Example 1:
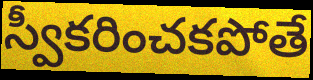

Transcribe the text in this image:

స్వీకరించకపోతే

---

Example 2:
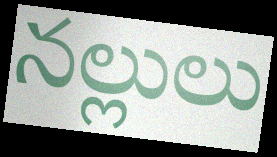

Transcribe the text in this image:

నల్లులు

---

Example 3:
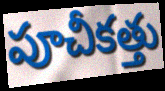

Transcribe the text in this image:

పూచీకత్తు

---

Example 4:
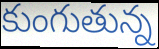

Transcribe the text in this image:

కుంగుతున్న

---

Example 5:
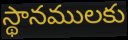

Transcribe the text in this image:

స్థానములకు